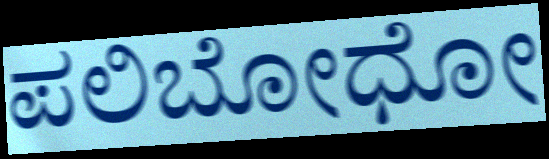
ಪಲಿಬೋಧೋ